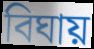
বিঘায়